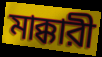
মাক্কারী